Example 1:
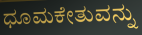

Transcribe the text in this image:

ಧೂಮಕೇತುವನ್ನು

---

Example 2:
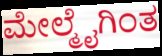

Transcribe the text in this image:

ಮೇಲ್ಮೈಗಿಂತ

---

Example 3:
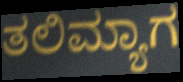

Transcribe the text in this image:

ತಲಿಮ್ಯಾಗ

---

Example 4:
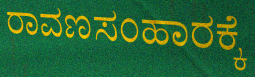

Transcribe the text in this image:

ರಾವಣಸಂಹಾರಕ್ಕೆ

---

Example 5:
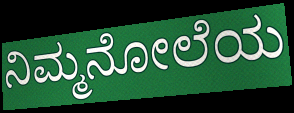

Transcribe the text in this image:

ನಿಮ್ಮನೋಲೆಯ